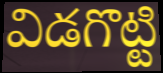
విడగొట్టి